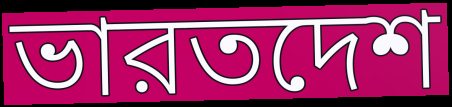
ভারতদেশ